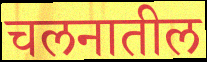
चलनातील